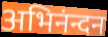
अभिनंन्दन